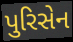
પુરિસેન